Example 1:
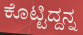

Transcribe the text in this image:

ಕೊಟ್ಟಿದ್ದನ್ನ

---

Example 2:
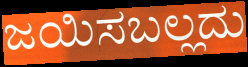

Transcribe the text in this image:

ಜಯಿಸಬಲ್ಲದು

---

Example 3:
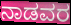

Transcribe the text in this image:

ನಾಡವರ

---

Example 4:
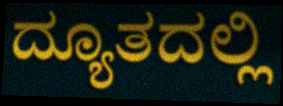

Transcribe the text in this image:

ದ್ಯೂತದಲ್ಲಿ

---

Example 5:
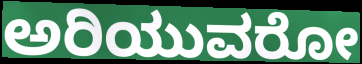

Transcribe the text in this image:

ಅರಿಯುವರೋ